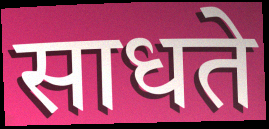
साधते